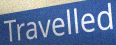
Travelled